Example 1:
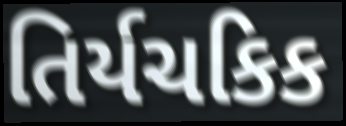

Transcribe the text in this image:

તિર્યચકિક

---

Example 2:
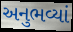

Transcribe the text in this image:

અનુભવ્યાં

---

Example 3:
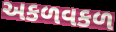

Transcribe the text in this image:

અકળવકળ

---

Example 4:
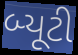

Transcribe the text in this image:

બ્યૂટી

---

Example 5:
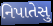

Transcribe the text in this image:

નિપાતેસુ